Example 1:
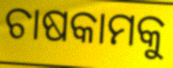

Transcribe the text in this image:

ଚାଷକାମକୁ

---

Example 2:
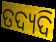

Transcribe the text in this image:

ତଦ୍ୟଦି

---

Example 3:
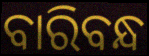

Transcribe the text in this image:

ବାରିବନ୍ଧ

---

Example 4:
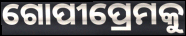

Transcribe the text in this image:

ଗୋପୀପ୍ରେମକୁ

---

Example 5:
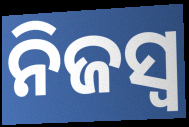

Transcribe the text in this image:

ନିଜସ୍ଵ